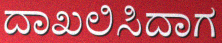
ದಾಖಲಿಸಿದಾಗ